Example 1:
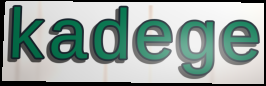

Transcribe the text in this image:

kadege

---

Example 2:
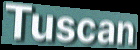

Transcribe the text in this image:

Tuscan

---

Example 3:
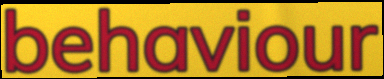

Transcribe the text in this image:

behaviour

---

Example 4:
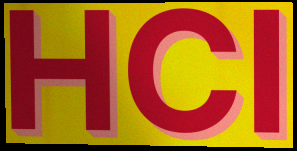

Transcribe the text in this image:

HCl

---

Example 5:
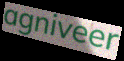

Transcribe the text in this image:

agniveer